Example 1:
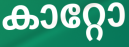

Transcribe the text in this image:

കാറ്റോ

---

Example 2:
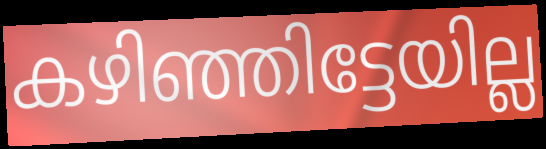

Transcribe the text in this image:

കഴിഞ്ഞിട്ടേയില്ല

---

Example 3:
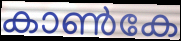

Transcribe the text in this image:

കാൺകേ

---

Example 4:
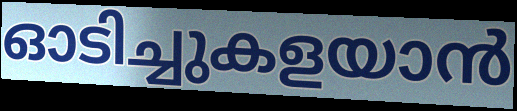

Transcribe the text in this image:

ഓടിച്ചുകളയാൻ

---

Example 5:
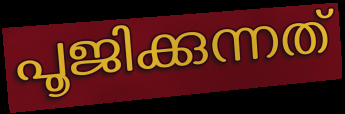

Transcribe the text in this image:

പൂജിക്കുന്നത്